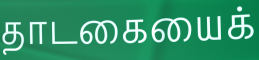
தாடகையைக்